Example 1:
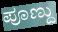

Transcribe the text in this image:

ಪೂಣ್ದು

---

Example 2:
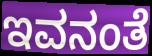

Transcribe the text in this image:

ಇವನಂತೆ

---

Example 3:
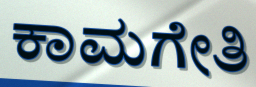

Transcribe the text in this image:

ಕಾಮಗೇತಿ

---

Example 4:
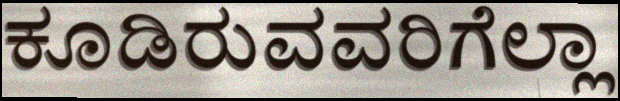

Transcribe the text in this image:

ಕೂಡಿರುವವರಿಗೆಲ್ಲಾ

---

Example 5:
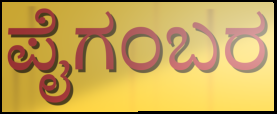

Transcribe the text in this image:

ಪೈಗಂಬರ